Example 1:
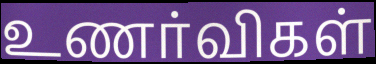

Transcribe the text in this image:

உணர்விகள்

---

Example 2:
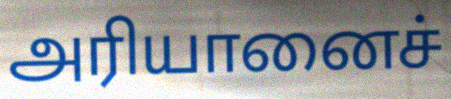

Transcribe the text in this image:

அரியானைச்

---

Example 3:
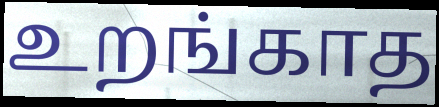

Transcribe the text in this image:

உறங்காத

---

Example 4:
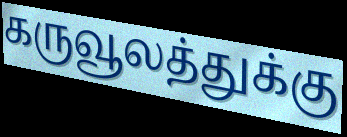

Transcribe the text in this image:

கருவூலத்துக்கு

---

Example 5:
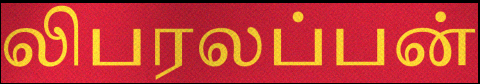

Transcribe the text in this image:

லிபரலப்பன்